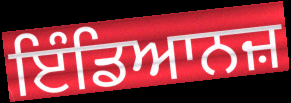
ਇੰਡਿਆਨਜ਼